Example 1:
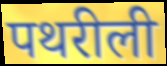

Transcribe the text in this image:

पथरीली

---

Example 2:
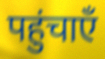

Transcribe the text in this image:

पहुंचाएँ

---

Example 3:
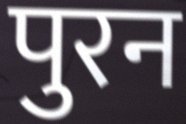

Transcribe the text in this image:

पुरन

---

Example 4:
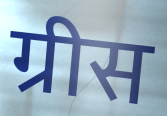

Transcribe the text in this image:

ग्रीस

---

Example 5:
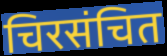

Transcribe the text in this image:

चिरसंचित